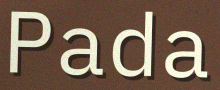
Pada